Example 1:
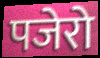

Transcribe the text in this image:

पजेरो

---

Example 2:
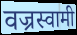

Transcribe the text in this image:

वज्रस्वामी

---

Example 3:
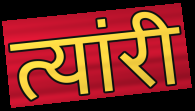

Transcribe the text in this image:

त्यांरी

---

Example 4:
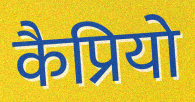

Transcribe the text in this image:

कैप्रियो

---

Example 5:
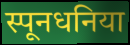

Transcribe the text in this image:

स्पूनधनिया